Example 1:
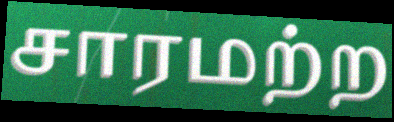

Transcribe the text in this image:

சாரமற்ற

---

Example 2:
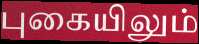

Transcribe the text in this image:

புகையிலும்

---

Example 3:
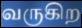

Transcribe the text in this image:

வருகிற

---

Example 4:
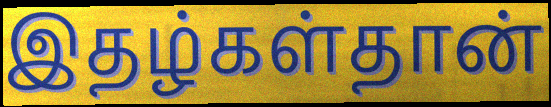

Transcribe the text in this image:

இதழ்கள்தான்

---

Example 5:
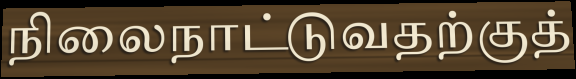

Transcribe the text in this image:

நிலைநாட்டுவதற்குத்